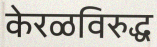
केरळविरुद्ध